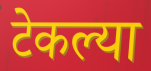
टेकल्या